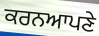
ਕਰਨਆਪਣੇ